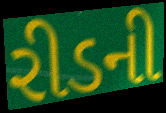
રીડની